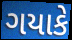
ગયાકે